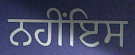
ਨਹੀਂਇਸ